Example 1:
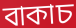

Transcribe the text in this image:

বাকাচ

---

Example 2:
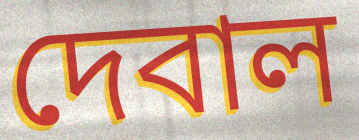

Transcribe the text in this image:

দেবাল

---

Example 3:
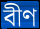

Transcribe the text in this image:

বীণ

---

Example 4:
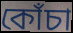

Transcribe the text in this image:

কোঁচা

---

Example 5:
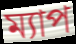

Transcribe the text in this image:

ম্যাপ